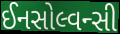
ઈનસોલ્વન્સી